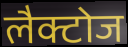
लैक्टोज